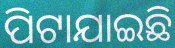
ପିଟାଯାଇଛି